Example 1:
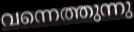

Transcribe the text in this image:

വന്നെത്തുന്നു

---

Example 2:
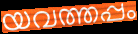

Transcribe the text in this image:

യവത്തപ്പം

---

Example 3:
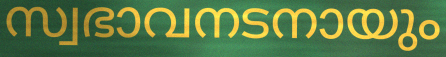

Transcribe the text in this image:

സ്വഭാവനടനായും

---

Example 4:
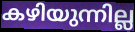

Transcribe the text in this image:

കഴിയുന്നില്ല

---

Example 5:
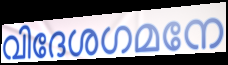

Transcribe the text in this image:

വിദേശഗമനേ